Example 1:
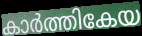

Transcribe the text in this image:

കാർത്തികേയ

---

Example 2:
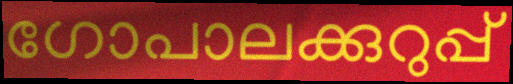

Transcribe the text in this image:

ഗോപാലക്കുറുപ്പ്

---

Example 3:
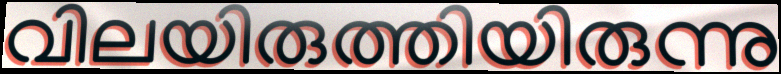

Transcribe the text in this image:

വിലയിരുത്തിയിരുന്നു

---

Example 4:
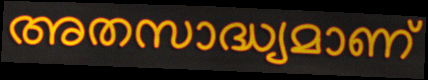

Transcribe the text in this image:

അതസാദ്ധ്യമാണ്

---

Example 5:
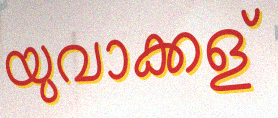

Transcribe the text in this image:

യുവാക്കള്